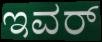
ಇವರ್